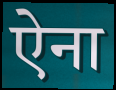
ऐना